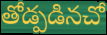
తోడ్పడినచో